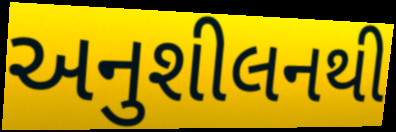
અનુશીલનથી